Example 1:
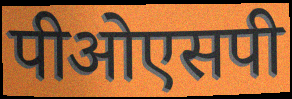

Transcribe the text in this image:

पीओएसपी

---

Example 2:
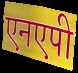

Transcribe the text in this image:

एनएपी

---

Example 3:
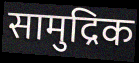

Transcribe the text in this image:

सामुद्रिक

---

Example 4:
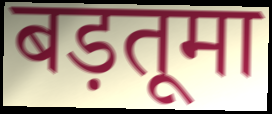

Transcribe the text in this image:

बड़तूमा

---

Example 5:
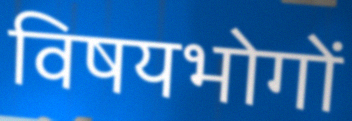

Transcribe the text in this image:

विषयभोगों